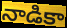
నాడికా